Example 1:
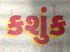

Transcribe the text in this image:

કશુંક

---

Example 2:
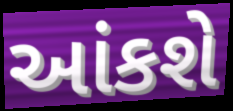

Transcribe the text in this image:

આંકશે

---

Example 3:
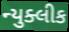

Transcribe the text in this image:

ન્યુક્લીક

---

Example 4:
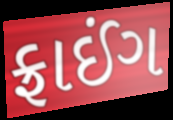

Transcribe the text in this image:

ફ્રાઈંગ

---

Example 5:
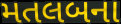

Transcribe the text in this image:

મતલબના